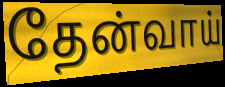
தேன்வாய்